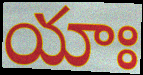
యాః